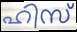
ഹിസ്